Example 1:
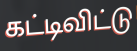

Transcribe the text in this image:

கட்டிவிட்டு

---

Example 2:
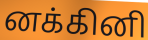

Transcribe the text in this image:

னக்கினி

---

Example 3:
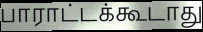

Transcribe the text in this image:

பாராட்டக்கூடாது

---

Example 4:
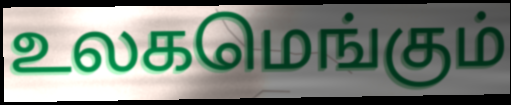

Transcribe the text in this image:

உலகமெங்கும்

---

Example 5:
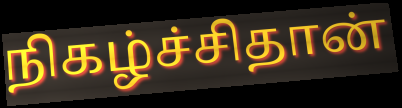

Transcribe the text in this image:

நிகழ்ச்சிதான்